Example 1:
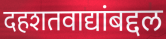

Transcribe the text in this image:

दहशतवाद्यांबद्दल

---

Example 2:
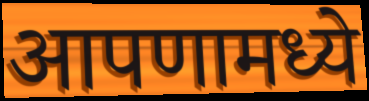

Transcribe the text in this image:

आपणामध्ये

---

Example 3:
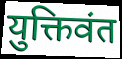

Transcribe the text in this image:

युक्तिवंत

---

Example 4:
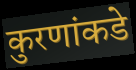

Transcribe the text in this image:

कुरणांकडे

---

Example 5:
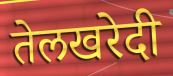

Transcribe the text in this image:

तेलखरेदी